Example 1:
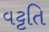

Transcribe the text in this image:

વટ્ટતિ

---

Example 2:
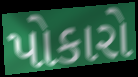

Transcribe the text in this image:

પોકારો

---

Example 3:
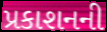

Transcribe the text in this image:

પ્રકાશનની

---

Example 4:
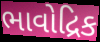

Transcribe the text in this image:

ભાવોદ્રિક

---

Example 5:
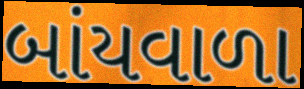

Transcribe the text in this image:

બાંયવાળા